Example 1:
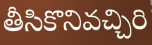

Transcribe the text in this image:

తీసికొనివచ్చిరి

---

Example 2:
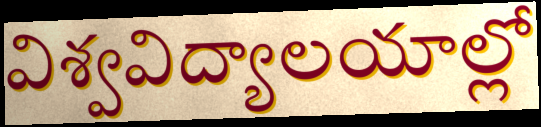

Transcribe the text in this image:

విశ్వవిద్యాలయాల్లో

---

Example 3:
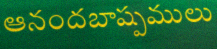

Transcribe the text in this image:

ఆనందబాష్పములు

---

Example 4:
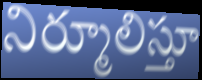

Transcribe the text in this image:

నిర్మూలిస్తూ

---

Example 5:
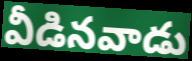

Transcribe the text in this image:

వీడినవాడు